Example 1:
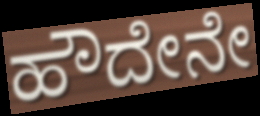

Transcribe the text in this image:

ಹೌದೇನೇ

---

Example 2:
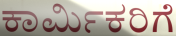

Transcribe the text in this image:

ಕಾರ್ಮಿಕರಿಗೆ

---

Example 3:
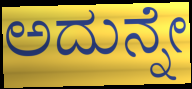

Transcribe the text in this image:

ಅದುನ್ನೇ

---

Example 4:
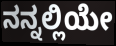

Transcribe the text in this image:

ನನ್ನಲ್ಲಿಯೇ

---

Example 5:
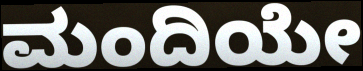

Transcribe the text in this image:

ಮಂದಿಯೇ